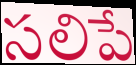
సలిపే